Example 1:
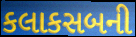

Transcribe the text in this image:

કલાકસબની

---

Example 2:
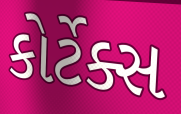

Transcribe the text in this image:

કોર્ટેક્સ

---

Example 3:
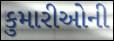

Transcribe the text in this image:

કુમારીઓની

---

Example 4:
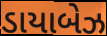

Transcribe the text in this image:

ડાયાબેઝ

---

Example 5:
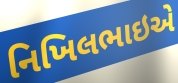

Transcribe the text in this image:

નિખિલભાઇએ